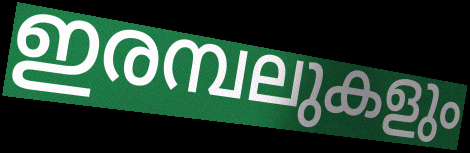
ഇരമ്പലുകളും